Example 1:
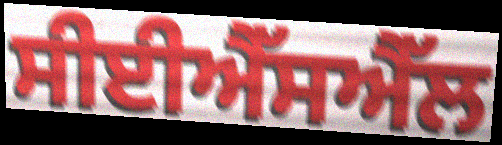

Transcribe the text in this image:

ਸੀਈਐੱਸਐੱਲ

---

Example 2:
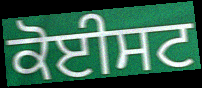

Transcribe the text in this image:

ਕੋਈਸਟ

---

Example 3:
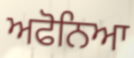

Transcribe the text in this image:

ਅਫੋਨਿਆ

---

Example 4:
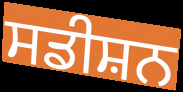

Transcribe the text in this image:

ਸਡੀਸ਼ਨ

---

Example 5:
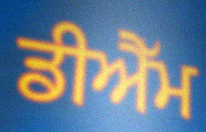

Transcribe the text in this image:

ਡੀਐੱਮ